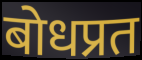
बोधप्रत